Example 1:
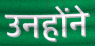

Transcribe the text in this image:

उनहोंने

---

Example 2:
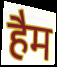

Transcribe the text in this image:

हैम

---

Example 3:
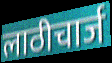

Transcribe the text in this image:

लाठीचार्ज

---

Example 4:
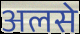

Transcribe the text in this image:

अलसे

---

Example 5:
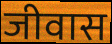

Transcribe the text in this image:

जीवास